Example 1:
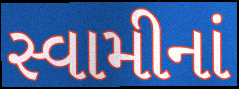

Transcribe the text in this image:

સ્વામીનાં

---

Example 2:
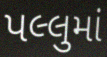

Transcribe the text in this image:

પલ્લુમાં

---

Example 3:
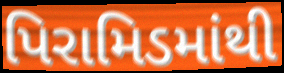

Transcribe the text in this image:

પિરામિડમાંથી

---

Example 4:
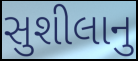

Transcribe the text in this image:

સુશીલાનુ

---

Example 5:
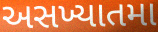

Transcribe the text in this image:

અસખ્યાતમા